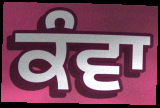
ਕੰਵਾ